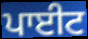
ਪਾਈਟ